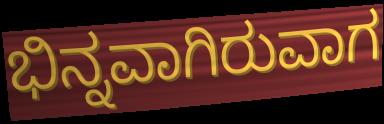
ಭಿನ್ನವಾಗಿರುವಾಗ